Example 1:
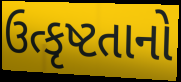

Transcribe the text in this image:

ઉત્કૃષ્ટતાનો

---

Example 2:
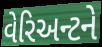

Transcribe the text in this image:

વેરિઅન્ટને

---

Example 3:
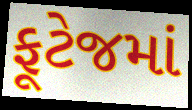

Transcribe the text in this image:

ફૂટેજમાં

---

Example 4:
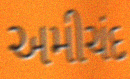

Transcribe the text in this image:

અમીચંદ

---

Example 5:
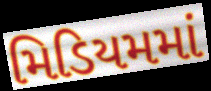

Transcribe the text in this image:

મિડિયમમાં